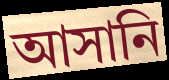
আসানি